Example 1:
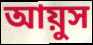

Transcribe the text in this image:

আয়ুস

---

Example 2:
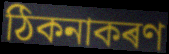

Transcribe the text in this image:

ঠিকনাকৰণ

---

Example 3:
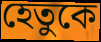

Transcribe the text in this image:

হেতুকে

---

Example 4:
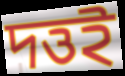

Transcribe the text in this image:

দত্তই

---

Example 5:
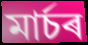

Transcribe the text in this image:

মাৰ্চৰ